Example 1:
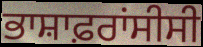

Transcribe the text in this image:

ਭਾਸ਼ਾਫ਼ਰਾਂਸੀਸੀ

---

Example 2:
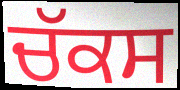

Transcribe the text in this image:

ਚੱਕਸ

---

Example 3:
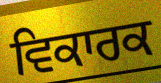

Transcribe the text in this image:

ਵਿਕਾਰਕ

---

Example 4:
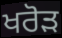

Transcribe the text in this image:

ਖਰੋੜ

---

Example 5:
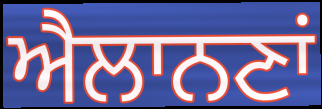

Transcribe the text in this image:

ਐਲਾਨਣਾਂ